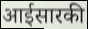
आईसारकी